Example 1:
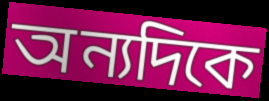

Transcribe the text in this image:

অন্যদিকে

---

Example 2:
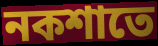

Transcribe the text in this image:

নকশাতে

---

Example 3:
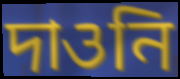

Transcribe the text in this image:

দাওনি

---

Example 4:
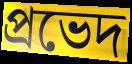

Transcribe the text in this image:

প্রভেদ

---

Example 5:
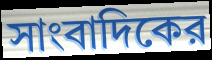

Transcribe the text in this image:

সাংবাদিকের